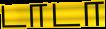
டாடா